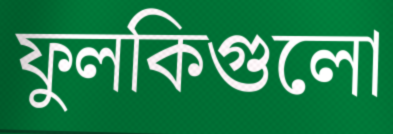
ফুলকিগুলো